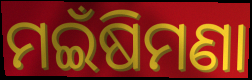
ମଇଁଷିମଣା